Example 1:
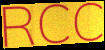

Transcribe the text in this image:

RCC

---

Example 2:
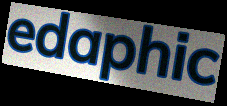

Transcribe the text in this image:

edaphic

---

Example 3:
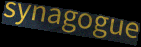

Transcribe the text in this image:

synagogue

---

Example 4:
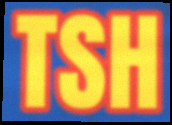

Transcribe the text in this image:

TSH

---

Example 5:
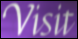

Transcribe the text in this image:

Visit